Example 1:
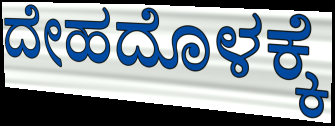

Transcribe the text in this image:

ದೇಹದೊಳಕ್ಕೆ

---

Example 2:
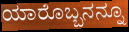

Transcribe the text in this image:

ಯಾರೊಬ್ಬನನ್ನೂ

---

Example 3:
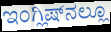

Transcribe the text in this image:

ಇಂಗ್ಲಿಷ್‌ನಲ್ಲೂ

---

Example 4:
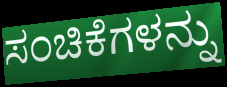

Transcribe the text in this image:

ಸಂಚಿಕೆಗಳನ್ನು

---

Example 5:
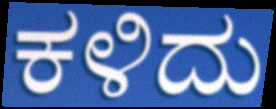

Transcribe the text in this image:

ಕಳಿದು